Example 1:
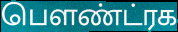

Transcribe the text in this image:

பௌண்ட்ரக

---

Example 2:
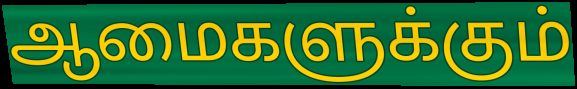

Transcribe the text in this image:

ஆமைகளுக்கும்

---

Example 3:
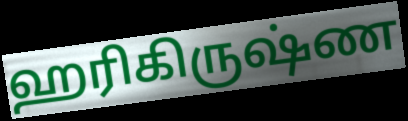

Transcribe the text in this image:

ஹரிகிருஷ்ண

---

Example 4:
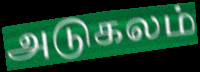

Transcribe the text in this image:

அடுகலம்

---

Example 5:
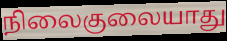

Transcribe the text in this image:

நிலைகுலையாது